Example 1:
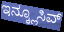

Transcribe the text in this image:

ಇನ್ಕ್ಲೂಸಿವ್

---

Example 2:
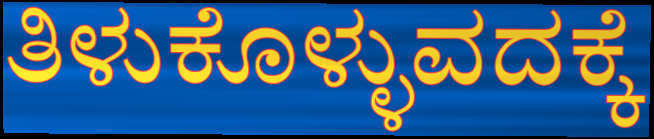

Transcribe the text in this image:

ತಿಳುಕೊಳ್ಳುವದಕ್ಕೆ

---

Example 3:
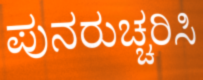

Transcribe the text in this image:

ಪುನರುಚ್ಚರಿಸಿ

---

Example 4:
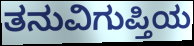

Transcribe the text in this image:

ತನುವಿಗುಪ್ತಿಯ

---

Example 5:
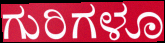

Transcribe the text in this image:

ಗುರಿಗಳೂ